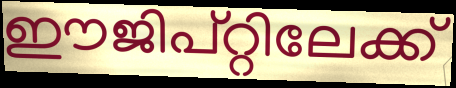
ഈജിപ്റ്റിലേക്ക്